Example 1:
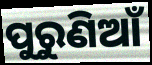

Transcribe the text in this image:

ପୁରୁଣିଆଁ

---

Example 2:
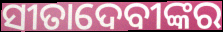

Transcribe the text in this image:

ସୀତାଦେବୀଙ୍କର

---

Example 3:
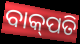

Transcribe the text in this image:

ବାକ୍‌ପତି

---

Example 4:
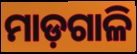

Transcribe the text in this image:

ମାଡ଼ଗାଳି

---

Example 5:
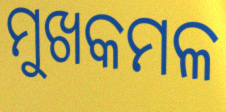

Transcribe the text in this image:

ମୁଖକମଳ